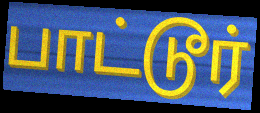
பாட்டூர்